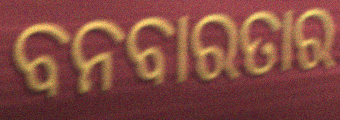
ବନବାରତାର